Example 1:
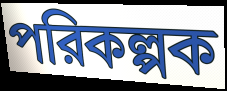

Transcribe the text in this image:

পরিকল্পক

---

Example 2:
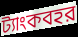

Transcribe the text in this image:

ট্যাংকবহর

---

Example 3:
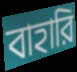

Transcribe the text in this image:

বাহারি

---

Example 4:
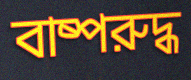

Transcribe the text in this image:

বাষ্পরুদ্ধ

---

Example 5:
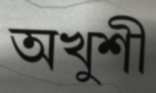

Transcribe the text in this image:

অখুশী